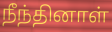
நீந்தினாள்